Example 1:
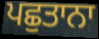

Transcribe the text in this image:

ਪਛੁਤਾਨਾ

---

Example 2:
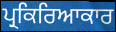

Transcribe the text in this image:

ਪ੍ਰਕਿਰਿਆਕਾਰ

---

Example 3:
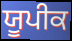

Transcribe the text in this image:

ਯੂਪੀਕ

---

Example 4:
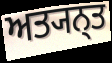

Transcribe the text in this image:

ਅਤ੍ਯਨ੍ਤ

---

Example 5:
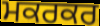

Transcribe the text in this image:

ਮਕਰਕਰ